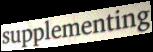
supplementing